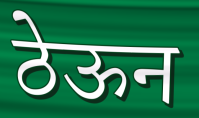
ठेऊन